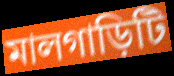
মালগাড়িটি